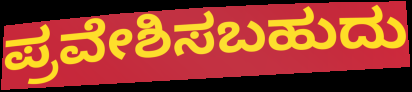
ಪ್ರವೇಶಿಸಬಹುದು